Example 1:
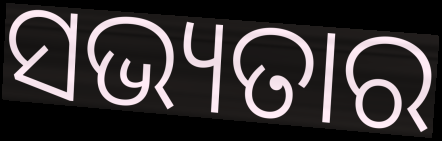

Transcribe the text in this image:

ସଭ୍ୟତାର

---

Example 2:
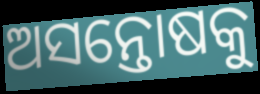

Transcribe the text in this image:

ଅସନ୍ତୋଷକୁ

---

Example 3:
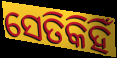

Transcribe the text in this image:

ସେତିକିହିଁ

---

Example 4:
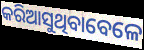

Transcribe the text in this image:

କରିଆସୁଥିବାବେଳେ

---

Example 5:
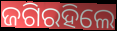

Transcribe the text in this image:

ଜଗିରହିଲେ